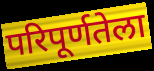
परिपूर्णतेला